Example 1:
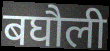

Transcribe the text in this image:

बघौली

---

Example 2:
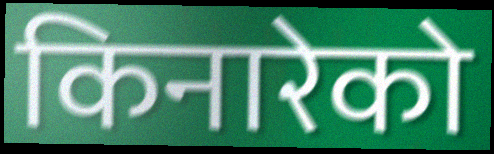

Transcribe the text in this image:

किनारेको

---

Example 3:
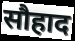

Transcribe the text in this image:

सौहाद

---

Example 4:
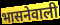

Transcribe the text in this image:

भासनेवाली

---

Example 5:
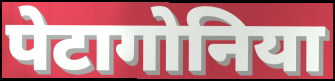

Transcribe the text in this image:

पेटागोनिया